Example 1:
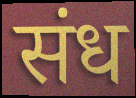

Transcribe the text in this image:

संध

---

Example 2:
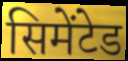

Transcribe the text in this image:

सिमेंटेड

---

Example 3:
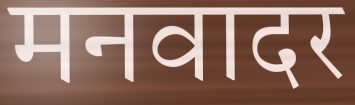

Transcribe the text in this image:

मनवादर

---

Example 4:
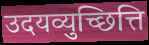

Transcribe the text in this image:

उदयव्युच्छित्ति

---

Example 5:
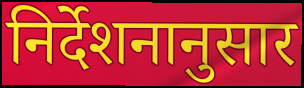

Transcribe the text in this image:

निर्देशनानुसार